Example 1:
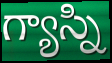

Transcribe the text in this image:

గ్యాస్ని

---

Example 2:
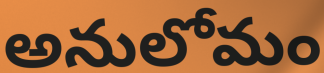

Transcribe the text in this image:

అనులోమం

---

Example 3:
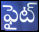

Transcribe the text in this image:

ఫైట్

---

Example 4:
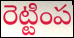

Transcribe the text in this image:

రెట్టింప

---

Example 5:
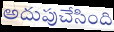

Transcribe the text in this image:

అదుపుచేసింది